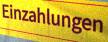
Einzahlungen